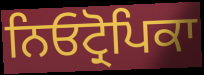
ਨਿਓਟ੍ਰੋਪਿਕਾ